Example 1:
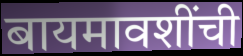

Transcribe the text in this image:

बायमावशींची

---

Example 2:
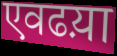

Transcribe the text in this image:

एवढय़ा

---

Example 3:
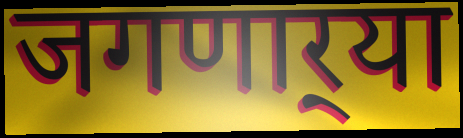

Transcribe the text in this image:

जगणार्या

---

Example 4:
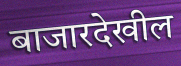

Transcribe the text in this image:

बाजारदेखील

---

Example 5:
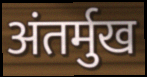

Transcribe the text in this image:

अंतर्मुख